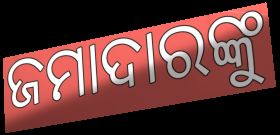
ଜମାଦାରଙ୍କୁ